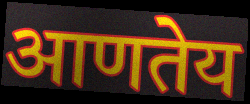
आणतेय